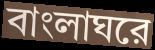
বাংলাঘরে